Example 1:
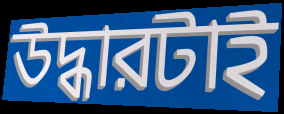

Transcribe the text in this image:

উদ্ধারটাই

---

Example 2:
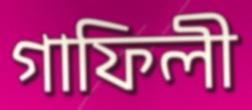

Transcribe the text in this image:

গাফিলী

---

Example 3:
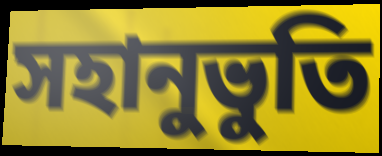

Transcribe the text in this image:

সহানুভুতি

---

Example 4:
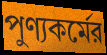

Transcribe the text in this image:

পুণ্যকর্মের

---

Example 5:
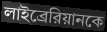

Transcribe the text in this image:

লাইব্রেরিয়ানকে